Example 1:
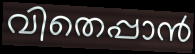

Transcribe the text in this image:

വിതെപ്പാൻ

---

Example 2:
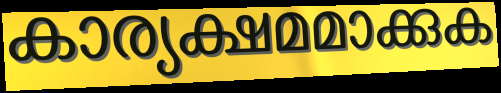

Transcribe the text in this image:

കാര്യക്ഷമമാക്കുക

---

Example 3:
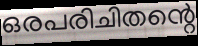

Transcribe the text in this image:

ഒരപരിചിതന്റെ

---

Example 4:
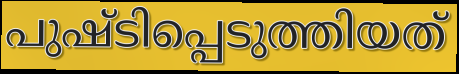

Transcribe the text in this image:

പുഷ്ടിപ്പെടുത്തിയത്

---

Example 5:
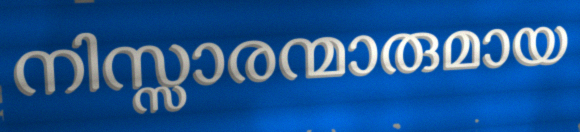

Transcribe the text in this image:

നിസ്സാരന്മാരുമായ